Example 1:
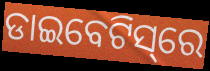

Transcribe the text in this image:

ଡାଇବେଟିସ୍‌ରେ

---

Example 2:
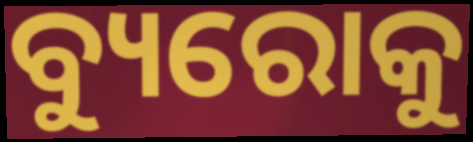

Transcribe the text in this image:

ବ୍ୟୁରୋକୁ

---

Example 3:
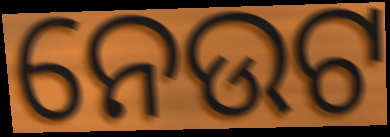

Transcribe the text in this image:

ନେଉଟ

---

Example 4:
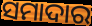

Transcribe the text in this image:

ସମାଦାର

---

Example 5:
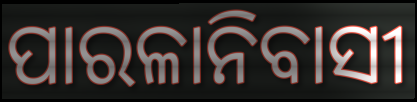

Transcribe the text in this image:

ପାରଳାନିବାସୀ